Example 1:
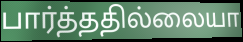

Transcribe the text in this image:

பார்த்ததில்லையா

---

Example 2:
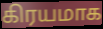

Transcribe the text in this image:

கிரயமாக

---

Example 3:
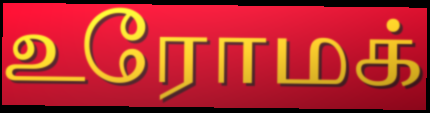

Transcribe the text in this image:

உரோமக்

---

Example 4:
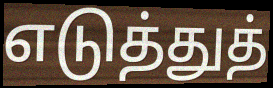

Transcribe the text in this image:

எடுத்துத்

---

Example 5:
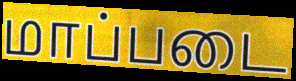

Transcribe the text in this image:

மாப்படை